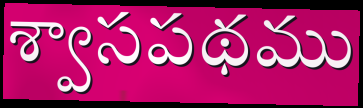
శ్వాసపథము